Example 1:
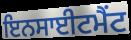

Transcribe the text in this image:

ਇਨਸਾਈਟਮੈਂਟ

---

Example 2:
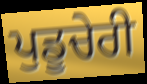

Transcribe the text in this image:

ਪੁਡੂਚੇਰੀ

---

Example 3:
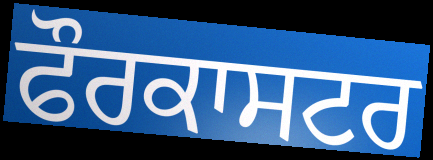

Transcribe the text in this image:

ਫੌਰਕਾਸਟਰ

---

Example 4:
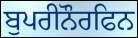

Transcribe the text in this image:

ਬੁਪਰੀਨੌਰਫਿਨ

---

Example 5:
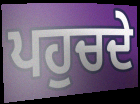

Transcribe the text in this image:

ਪਹੁਚਦੇ